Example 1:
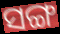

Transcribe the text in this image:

ସଙ୍ଗ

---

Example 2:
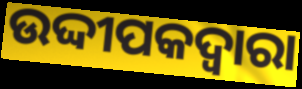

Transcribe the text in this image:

ଉଦ୍ଦୀପକଦ୍ବାରା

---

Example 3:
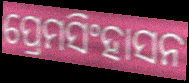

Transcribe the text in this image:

ପ୍ରେମସିଂହାସନ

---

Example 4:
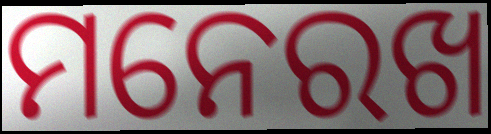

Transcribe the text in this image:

ମନେରଖ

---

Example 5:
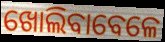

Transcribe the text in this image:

ଖୋଲିବାବେଳେ